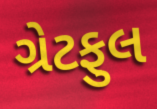
ગ્રેટફુલ